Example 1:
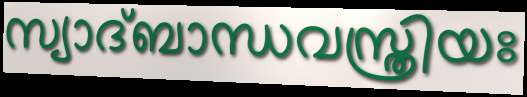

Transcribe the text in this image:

സ്യാദ്ബാന്ധവസ്ത്രിയഃ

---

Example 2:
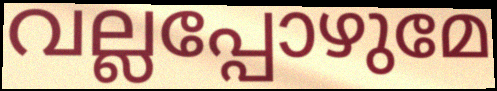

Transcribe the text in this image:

വല്ലപ്പോഴുമേ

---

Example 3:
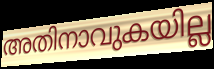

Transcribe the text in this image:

അതിനാവുകയില്ല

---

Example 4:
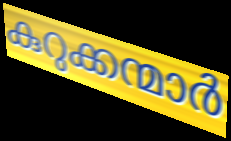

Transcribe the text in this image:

കുറുക്കന്മാർ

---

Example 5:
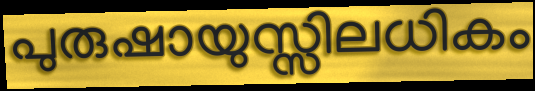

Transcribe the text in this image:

പുരുഷായുസ്സിലധികം